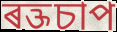
ৰক্তচাপ